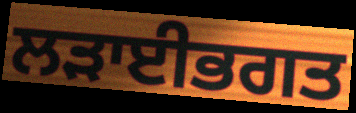
ਲੜਾਈਭਗਤ